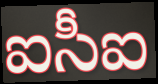
ఐసీఐ